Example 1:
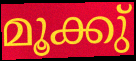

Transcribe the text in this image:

മൂക്കു്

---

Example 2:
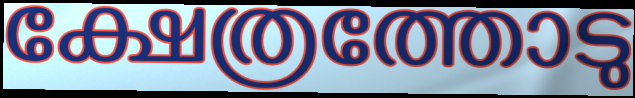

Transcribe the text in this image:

ക്ഷേത്രത്തോടു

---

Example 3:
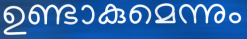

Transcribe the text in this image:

ഉണ്ടാകുമെന്നും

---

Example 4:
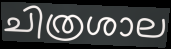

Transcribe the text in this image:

ചിത്രശാല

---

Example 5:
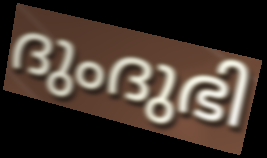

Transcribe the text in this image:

ദുംദുഭി